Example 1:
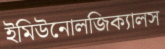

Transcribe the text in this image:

ইমিউনোলজিক্যালস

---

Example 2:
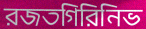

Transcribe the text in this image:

রজতগিরিনিভ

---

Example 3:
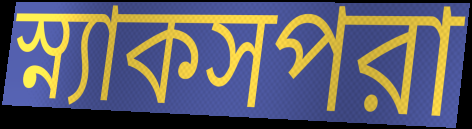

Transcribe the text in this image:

স্ন্যাকসপরা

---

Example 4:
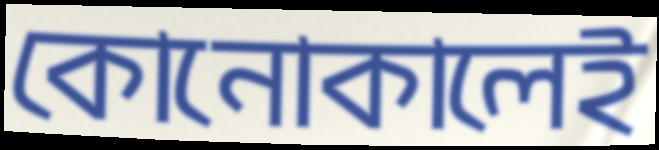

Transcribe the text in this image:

কোনোকালেই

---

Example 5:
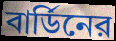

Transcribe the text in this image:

বার্ডিনের